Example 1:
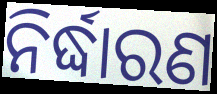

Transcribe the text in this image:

ନିର୍ଦ୍ଧାରଣ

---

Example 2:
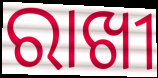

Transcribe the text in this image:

ରାଖୀ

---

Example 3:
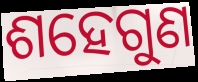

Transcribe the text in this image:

ଶହେଗୁଣ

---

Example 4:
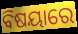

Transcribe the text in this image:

ବିଷୟାରେ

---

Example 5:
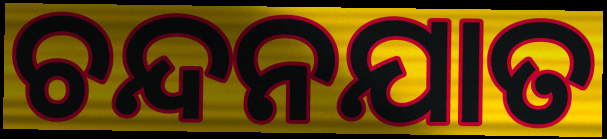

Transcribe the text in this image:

ଚନ୍ଦନଯାତ